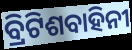
ବ୍ରିଟିଶବାହିନୀ